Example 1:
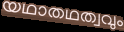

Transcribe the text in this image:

യഥാതഥത്വവും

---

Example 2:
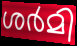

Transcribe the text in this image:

ശർമി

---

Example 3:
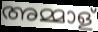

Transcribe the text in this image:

അമ്മാള്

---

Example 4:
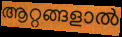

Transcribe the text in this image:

ആറ്റങ്ങളാൽ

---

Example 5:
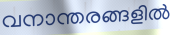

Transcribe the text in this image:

വനാന്തരങ്ങളിൽ